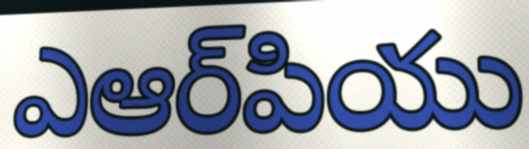
ఎఆర్‌పియు